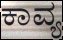
ಕಾವ್ಯ